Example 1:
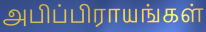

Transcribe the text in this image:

அபிப்பிராயங்கள்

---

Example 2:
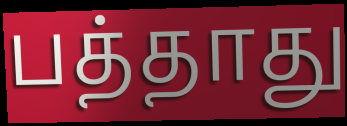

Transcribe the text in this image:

பத்தாது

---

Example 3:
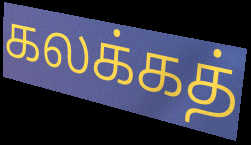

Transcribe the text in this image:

கலக்கத்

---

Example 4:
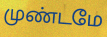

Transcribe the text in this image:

முண்டமே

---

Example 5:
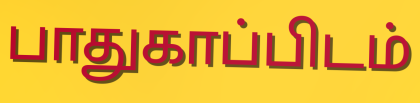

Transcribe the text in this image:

பாதுகாப்பிடம்